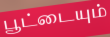
பூட்டையும்